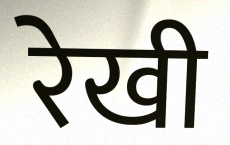
रेखी